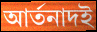
আর্তনাদই